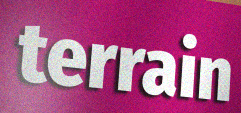
terrain